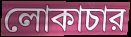
লোকাচার